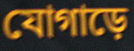
যোগাড়ে